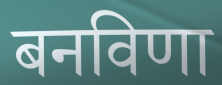
बनविणा